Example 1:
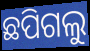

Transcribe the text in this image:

ଛପିଗଲୁ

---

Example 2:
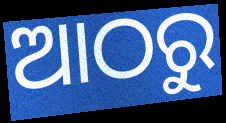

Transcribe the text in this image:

ଆଠରୁ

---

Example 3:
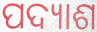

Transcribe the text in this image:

ପଦ୍ୟାଶ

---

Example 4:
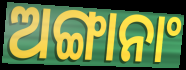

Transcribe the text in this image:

ଅଙ୍ଗାନାଂ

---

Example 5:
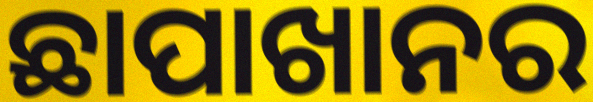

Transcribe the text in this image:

ଛାପାଖାନର